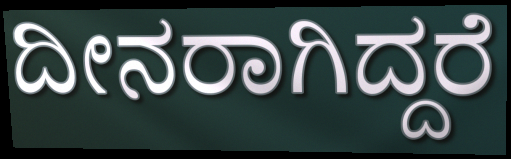
ದೀನರಾಗಿದ್ದರೆ